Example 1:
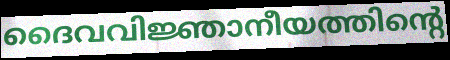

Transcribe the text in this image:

ദൈവവിജ്ഞാനീയത്തിന്റെ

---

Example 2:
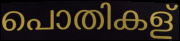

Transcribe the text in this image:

പൊതികള്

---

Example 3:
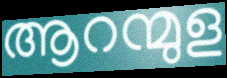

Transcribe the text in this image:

ആറന്മുള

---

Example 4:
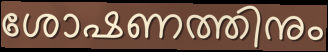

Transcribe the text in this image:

ശോഷണത്തിനും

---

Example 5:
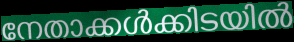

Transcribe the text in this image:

നേതാക്കൾക്കിടയിൽ